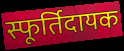
स्फूर्तिदायक